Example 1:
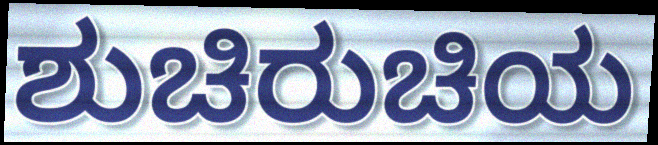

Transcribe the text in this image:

ಶುಚಿರುಚಿಯ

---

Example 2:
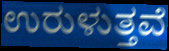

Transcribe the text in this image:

ಉರುಳುತ್ತವೆ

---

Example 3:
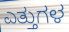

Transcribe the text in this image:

ಎತ್ತುಗಳ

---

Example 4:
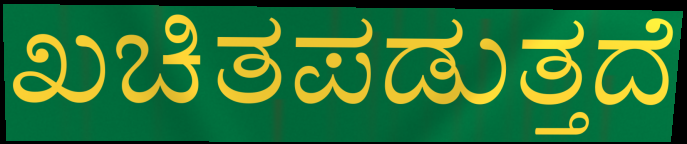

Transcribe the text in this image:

ಖಚಿತಪಡುತ್ತದೆ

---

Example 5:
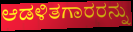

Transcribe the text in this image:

ಆಡಳಿತಗಾರರನ್ನು